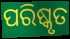
ପରିଷ୍କୃତ